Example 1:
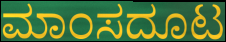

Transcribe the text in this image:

ಮಾಂಸದೂಟ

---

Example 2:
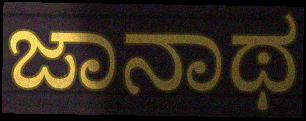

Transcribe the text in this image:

ಜಾನಾಥ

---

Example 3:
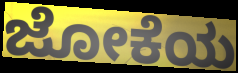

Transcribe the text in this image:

ಜೋಕೆಯ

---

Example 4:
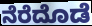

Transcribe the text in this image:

ನೆರೆದೊಡೆ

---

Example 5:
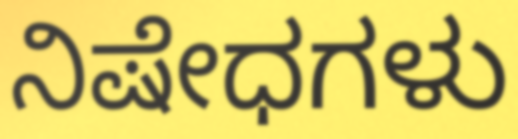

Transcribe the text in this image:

ನಿಷೇಧಗಳು